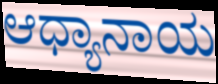
ಆಧ್ಯಾನಾಯ